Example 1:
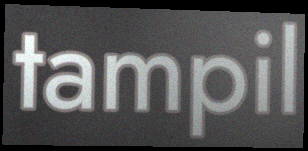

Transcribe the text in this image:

tampil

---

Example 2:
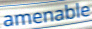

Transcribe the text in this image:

amenable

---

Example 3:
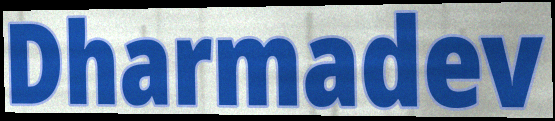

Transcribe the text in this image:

Dharmadev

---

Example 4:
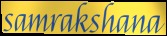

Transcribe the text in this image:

samrakshana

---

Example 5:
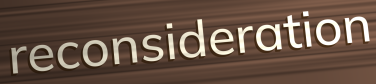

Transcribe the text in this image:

reconsideration